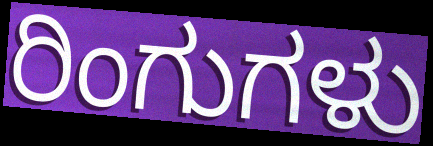
ರಿಂಗುಗಳು